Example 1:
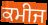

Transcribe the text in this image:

ਕਮੀਜ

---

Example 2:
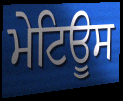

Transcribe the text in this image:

ਮੇਟਿਊਸ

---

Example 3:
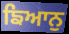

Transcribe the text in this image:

ਙਿਆਨੁ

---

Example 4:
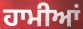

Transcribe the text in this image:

ਹਾਮੀਆਂ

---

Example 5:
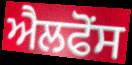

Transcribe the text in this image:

ਐਲਫੋਂਸ